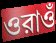
ওরাওঁ